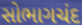
સોભાગચંદ